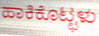
ಹಾಕಿಕೊಟ್ಟಳು